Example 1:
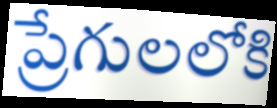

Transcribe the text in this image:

ప్రేగులలోకి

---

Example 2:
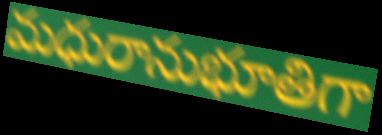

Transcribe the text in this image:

మధురానుభూతిగా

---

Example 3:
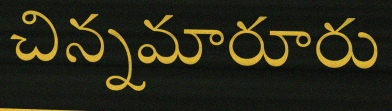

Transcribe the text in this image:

చిన్నమారూరు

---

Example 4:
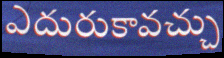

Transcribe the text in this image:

ఎదురుకావచ్చు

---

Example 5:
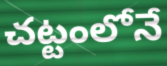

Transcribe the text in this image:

చట్టంలోనే